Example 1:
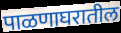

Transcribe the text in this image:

पाळणाघरातील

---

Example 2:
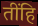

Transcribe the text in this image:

तींहि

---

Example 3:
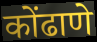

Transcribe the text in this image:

कोंढाणे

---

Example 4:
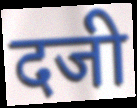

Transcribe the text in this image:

दजी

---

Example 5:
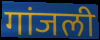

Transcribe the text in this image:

गांजली